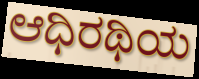
ಆಧಿರಥಿಯ